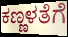
ಕಣ್ಣಳತೆಗೆ